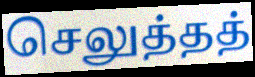
செலுத்தத்